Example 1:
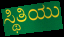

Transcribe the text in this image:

ಸ್ಥಿತಿಯು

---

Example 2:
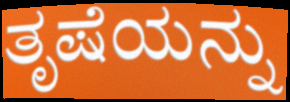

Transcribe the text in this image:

ತೃಷೆಯನ್ನು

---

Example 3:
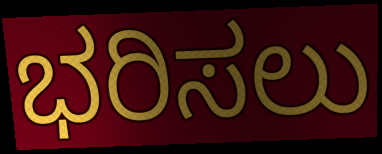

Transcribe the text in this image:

ಭರಿಸಲು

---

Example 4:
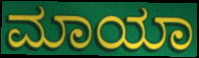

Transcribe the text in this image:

ಮಾಯಾ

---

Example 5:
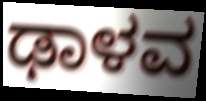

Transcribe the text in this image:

ಢಾಳವ